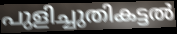
പുളിച്ചുതികട്ടൽ